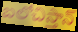
బలోచిస్తాన్